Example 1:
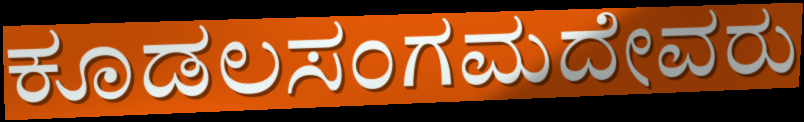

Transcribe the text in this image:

ಕೂಡಲಸಂಗಮದೇವರು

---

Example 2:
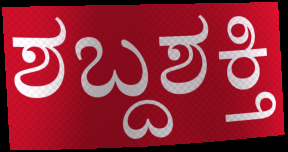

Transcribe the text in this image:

ಶಬ್ದಶಕ್ತಿ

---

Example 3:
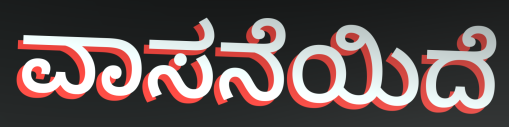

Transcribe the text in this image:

ವಾಸನೆಯಿದೆ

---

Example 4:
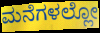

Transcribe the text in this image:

ಮನೆಗಳಲ್ಲೋ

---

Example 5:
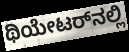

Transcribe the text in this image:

ಥಿಯೇಟರ್‌ನಲ್ಲಿ